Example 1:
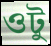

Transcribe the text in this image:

ওটু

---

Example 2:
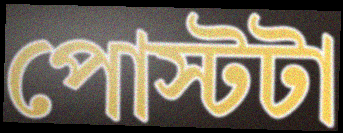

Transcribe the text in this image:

পোস্টটা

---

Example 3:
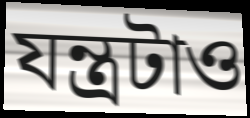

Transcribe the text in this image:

যন্ত্রটাও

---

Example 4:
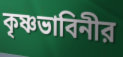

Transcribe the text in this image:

কৃষ্ণভাবিনীর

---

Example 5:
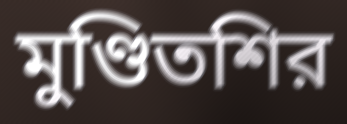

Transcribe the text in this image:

মুণ্ডিতশির